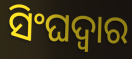
ସିଂଘଦ୍ୱାର